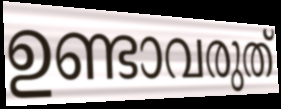
ഉണ്ടാവരുത്